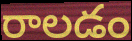
రాలడం